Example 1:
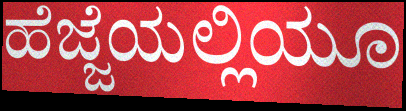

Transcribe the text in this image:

ಹೆಜ್ಜೆಯಲ್ಲಿಯೂ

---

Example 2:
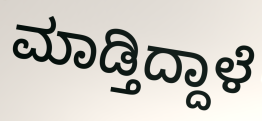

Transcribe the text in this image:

ಮಾಡ್ತಿದ್ದಾಳೆ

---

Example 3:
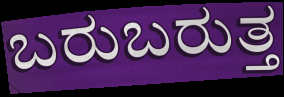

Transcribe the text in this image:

ಬರುಬರುತ್ತ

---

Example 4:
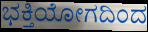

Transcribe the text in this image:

ಭಕ್ತಿಯೋಗದಿಂದ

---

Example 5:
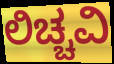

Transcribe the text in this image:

ಲಿಚ್ಚವಿ